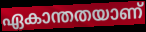
ഏകാന്തതയാണ്